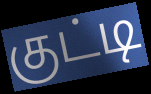
குட்டி